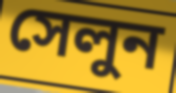
সেলুন